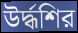
উর্দ্ধশির